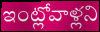
ఇంట్లోవాళ్లని